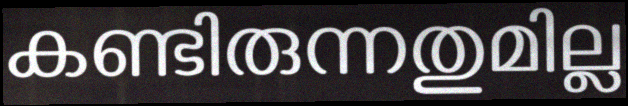
കണ്ടിരുന്നതുമില്ല